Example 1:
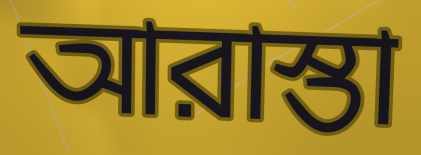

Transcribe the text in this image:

আরাস্তা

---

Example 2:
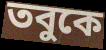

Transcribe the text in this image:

তবুকে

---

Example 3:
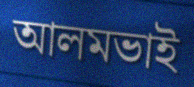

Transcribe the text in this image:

আলমভাই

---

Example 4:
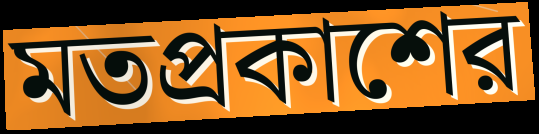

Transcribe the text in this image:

মতপ্রকাশের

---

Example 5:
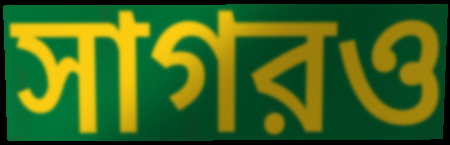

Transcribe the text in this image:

সাগরও